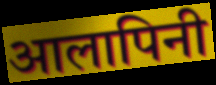
आलापिनी